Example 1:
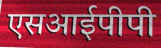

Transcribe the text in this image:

एसआईपीपी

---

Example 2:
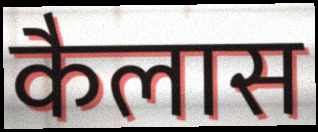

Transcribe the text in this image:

कैलास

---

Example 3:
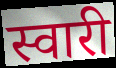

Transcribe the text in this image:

स्वारी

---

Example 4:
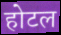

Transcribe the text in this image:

होटल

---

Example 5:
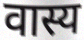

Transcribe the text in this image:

वास्य